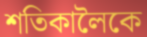
শতিকালৈকে